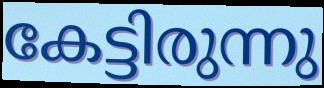
കേട്ടിരുന്നു